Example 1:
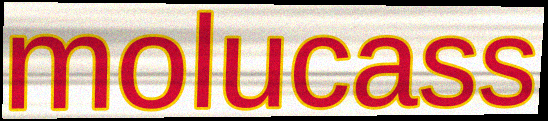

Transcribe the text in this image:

molucass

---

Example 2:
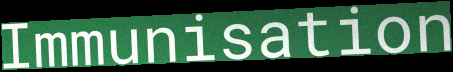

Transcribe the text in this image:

Immunisation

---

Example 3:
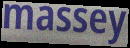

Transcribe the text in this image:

massey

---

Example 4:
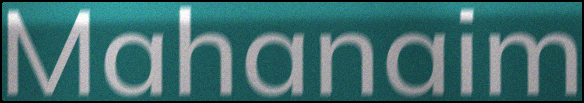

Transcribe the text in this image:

Mahanaim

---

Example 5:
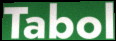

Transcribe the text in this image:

Tabol